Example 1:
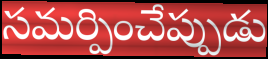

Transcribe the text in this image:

సమర్పించేప్పుడు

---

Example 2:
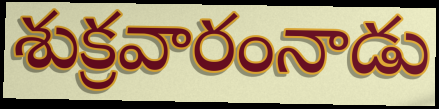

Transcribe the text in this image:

శుక్రవారంనాడు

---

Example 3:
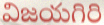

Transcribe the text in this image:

విజయగిరి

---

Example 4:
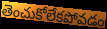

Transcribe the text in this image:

తెంచుకోలేకపోవడం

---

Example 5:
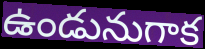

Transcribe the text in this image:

ఉండునుగాక